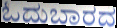
ಓದುಬಾರದ